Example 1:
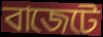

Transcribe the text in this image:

বাজেটে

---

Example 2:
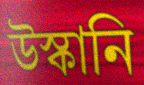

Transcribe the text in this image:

উস্কানি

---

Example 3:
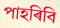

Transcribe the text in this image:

পাহৰিবি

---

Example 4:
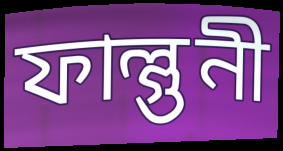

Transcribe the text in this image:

ফাল্গুনী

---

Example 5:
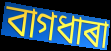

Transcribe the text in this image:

বাগধাৰা